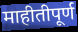
माहीतीपूर्ण